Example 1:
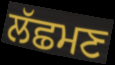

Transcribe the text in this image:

ਲੱਛਮਣ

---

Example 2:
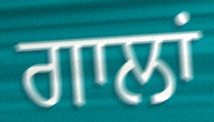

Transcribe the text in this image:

ਗਾਲਾਂ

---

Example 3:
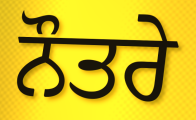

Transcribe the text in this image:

ਨੌਤਰੇ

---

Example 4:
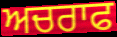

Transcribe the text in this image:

ਅਚਰਾਫ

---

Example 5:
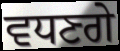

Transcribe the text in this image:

ਵਧਣਗੇ